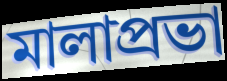
মালাপ্রভা